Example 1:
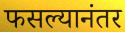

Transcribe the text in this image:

फसल्यानंतर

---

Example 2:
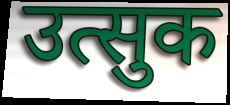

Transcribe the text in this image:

उत्सुक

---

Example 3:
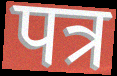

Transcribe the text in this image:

पत्र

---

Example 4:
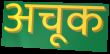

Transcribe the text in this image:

अचूक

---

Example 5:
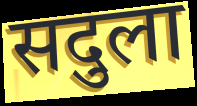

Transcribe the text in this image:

सदुला